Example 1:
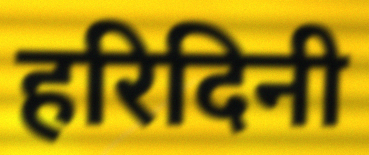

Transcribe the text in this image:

हरिदिनी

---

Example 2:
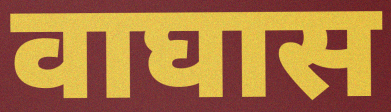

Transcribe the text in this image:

वाघास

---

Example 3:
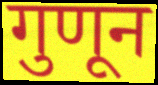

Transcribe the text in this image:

गुणून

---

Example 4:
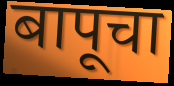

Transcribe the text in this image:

बापूचा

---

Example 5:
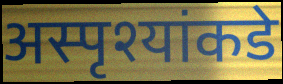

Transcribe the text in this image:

अस्पृश्यांकडे